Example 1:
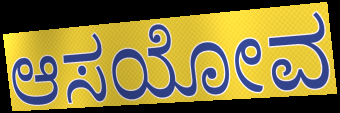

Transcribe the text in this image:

ಆಸಯೋವ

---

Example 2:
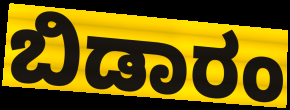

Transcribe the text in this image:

ಬಿಡಾರಂ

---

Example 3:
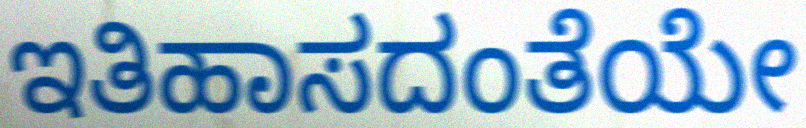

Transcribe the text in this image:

ಇತಿಹಾಸದಂತೆಯೇ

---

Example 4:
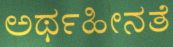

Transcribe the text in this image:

ಅರ್ಥಹೀನತೆ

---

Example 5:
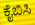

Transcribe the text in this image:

ಕೈಬಿಸಿ